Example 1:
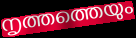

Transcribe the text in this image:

നൃത്തത്തെയും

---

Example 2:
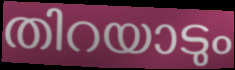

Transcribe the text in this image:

തിറയാടും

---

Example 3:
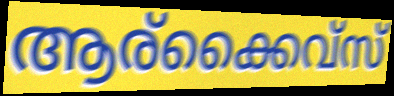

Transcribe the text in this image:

ആര്ക്കൈവ്സ്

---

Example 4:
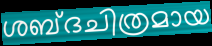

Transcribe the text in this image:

ശബ്ദചിത്രമായ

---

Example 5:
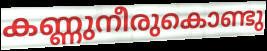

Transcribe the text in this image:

കണ്ണുനീരുകൊണ്ടു